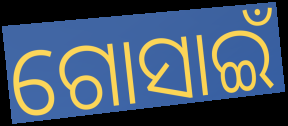
ଗୋସାଇଁ